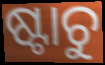
ଷ୍ଟାଚୁ